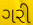
ગરી